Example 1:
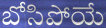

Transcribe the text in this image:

బోసిపోయే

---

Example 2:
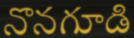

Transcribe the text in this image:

నొనగూడి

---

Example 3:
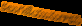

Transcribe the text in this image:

కలుగజేయునుగాకని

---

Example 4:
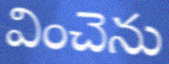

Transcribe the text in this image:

వించెను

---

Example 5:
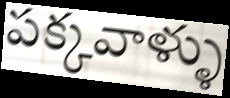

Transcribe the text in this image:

పక్కవాళ్ళు